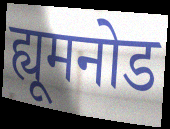
ह्यूमनोड